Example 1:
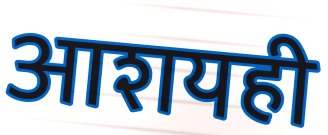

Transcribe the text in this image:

आशयही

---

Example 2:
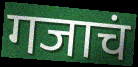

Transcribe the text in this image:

गजाचं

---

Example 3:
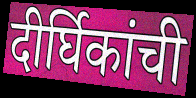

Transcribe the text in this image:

दीर्घिकांची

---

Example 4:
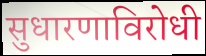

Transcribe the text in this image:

सुधारणाविरोधी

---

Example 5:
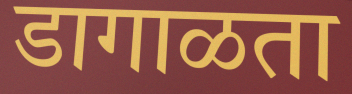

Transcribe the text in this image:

डागाळता